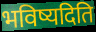
भविष्यदिति